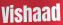
Vishaad